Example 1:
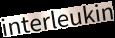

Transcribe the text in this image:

interleukin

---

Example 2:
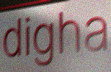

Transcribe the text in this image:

digha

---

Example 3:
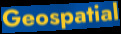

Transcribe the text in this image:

Geospatial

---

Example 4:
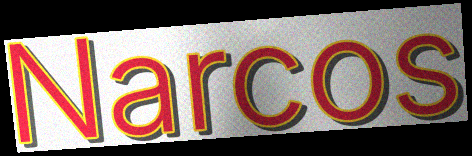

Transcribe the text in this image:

Narcos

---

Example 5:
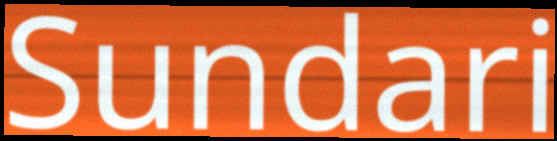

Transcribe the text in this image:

Sundari